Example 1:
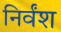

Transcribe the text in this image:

निर्वंश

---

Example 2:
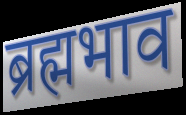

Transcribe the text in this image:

ब्रह्मभाव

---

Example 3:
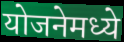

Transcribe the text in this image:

योजनेमध्ये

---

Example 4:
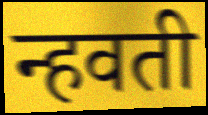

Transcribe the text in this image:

न्हवती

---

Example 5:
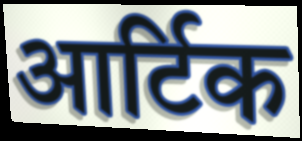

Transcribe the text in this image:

आर्टिक